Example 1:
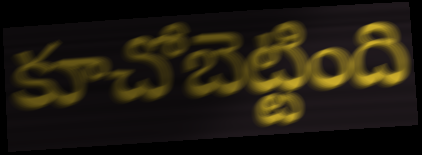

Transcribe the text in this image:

కూచోబెట్టింది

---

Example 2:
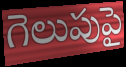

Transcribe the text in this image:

గెలుపుపై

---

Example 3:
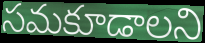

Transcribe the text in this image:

సమకూడాలని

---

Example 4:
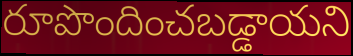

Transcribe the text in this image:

రూపొందించబడ్డాయని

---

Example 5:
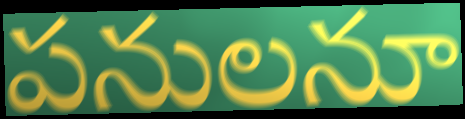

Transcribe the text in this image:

పనులనూ